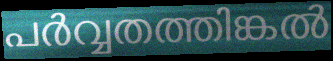
പർവ്വതത്തിങ്കൽ